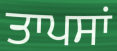
ਤਾਪਸਾਂ